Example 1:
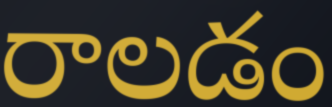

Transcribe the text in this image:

రాలడం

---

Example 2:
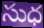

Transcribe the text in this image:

సుధ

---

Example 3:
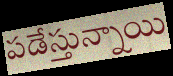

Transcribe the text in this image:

పడేస్తున్నాయి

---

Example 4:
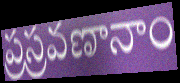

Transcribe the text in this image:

ప్రస్రవణానాం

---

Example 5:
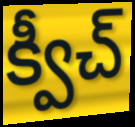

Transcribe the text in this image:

క్వీచ్